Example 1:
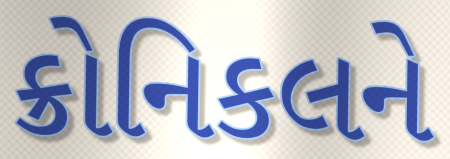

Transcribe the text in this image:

ક્રોનિકલને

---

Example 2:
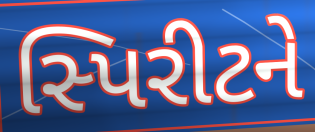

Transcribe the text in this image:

સ્પિરીટને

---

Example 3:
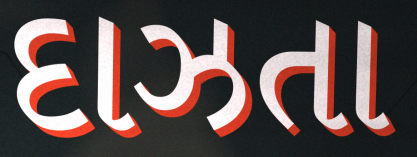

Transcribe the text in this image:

દાઝતા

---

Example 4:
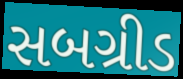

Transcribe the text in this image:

સબગ્રીડ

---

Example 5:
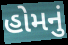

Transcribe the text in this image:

હોમનું